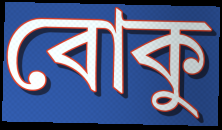
বোকু